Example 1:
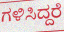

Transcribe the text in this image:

ಗಳಿಸಿದ್ದರೆ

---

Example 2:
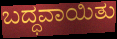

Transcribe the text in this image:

ಬದ್ಧವಾಯಿತು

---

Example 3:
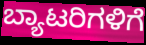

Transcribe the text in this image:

ಬ್ಯಾಟರಿಗಳಿಗೆ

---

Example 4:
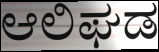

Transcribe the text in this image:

ಆಲಿಘಡ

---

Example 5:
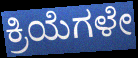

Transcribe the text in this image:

ಕ್ರಿಯೆಗಳೇ